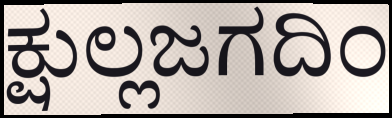
ಕ್ಷುಲ್ಲಜಗದಿಂ